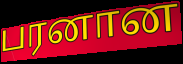
பரனான